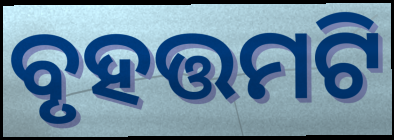
ବୃହତ୍ତମଟି